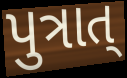
પુત્રાત્